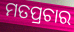
ମତପ୍ରଚାର